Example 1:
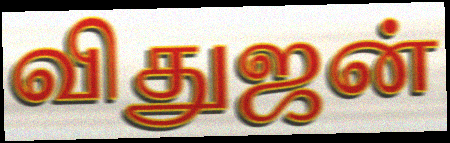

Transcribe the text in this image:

விதுஜன்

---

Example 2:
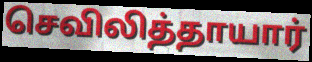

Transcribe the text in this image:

செவிலித்தாயார்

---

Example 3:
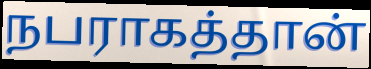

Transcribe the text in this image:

நபராகத்தான்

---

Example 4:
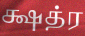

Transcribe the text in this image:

க்ஷத்ர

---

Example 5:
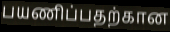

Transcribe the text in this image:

பயணிப்பதற்கான